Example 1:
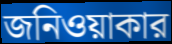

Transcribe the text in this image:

জনিওয়াকার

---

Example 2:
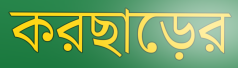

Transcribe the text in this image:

করছাড়ের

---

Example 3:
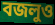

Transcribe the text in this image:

বজলুও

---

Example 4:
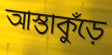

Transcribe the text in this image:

আস্তাকুঁড়ে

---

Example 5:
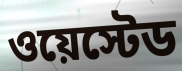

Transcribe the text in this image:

ওয়েস্টেড